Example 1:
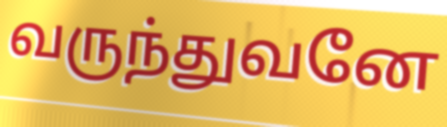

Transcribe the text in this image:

வருந்துவனே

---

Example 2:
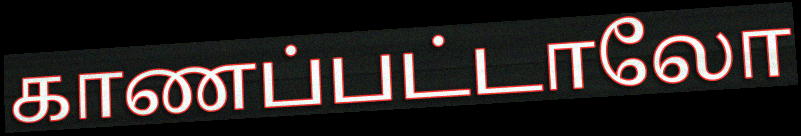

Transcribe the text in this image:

காணப்பட்டாலோ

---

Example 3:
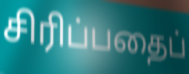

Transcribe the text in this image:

சிரிப்பதைப்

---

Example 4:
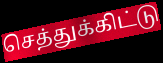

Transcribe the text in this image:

செத்துக்கிட்டு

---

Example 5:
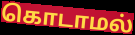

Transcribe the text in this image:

கொடாமல்